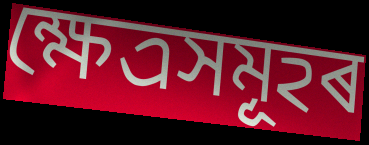
ক্ষেত্ৰসমূহৰ